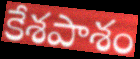
కేశపాశం